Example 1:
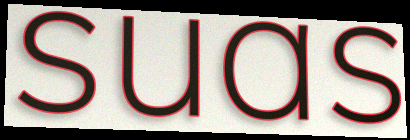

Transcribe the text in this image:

suas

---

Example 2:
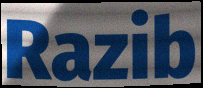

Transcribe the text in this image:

Razib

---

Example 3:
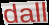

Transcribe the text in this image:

dall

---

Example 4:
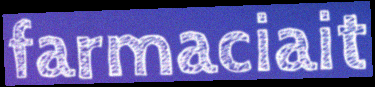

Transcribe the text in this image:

farmaciait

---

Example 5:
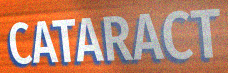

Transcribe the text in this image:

CATARACT